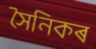
সৈনিকৰ